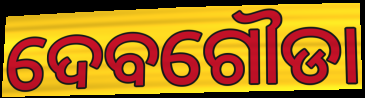
ଦେବଗୌଡା